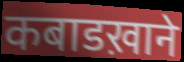
कबाडख़ाने